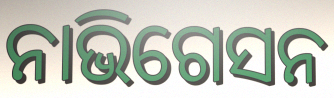
ନାଭିଗେସନ